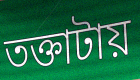
তক্তাটায়